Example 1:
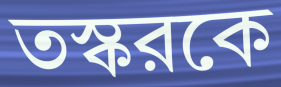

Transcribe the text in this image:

তস্করকে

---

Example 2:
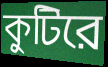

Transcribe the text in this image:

কুটিরে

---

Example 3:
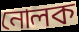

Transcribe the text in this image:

নোলক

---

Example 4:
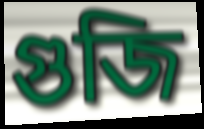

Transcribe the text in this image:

গুজি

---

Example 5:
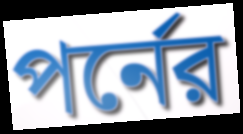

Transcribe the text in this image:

পর্নের